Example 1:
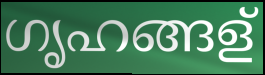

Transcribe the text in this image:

ഗൃഹങ്ങള്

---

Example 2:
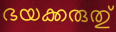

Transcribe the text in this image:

ഭയക്കരുതു്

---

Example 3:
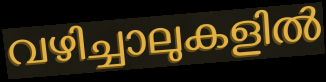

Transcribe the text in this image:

വഴിച്ചാലുകളിൽ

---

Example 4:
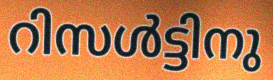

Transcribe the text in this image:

റിസൾട്ടിനു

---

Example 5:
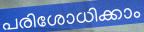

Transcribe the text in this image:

പരിശോധിക്കാം